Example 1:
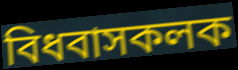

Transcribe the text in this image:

বিধবাসকলক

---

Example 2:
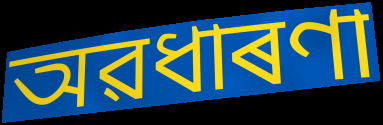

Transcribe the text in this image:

অৱধাৰণা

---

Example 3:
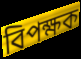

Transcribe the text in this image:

বিপক্ষক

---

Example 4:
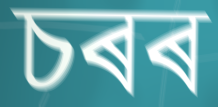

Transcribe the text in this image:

চৰৰ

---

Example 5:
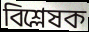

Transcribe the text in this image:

বিশ্লেষক